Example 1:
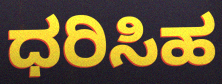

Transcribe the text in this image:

ಧರಿಸಿಹ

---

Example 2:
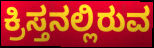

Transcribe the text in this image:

ಕ್ರಿಸ್ತನಲ್ಲಿರುವ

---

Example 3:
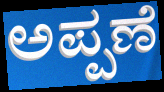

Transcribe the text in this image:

ಅಪ್ಪಣೆ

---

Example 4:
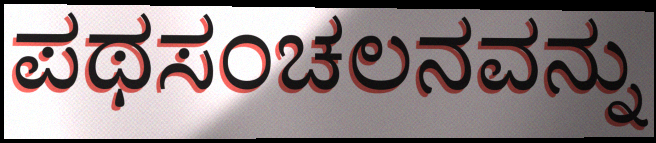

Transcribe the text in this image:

ಪಥಸಂಚಲನವನ್ನು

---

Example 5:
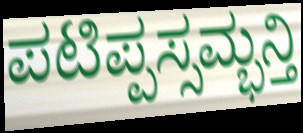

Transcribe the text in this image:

ಪಟಿಪ್ಪಸ್ಸಮ್ಭನ್ತಿ